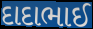
દાદાભાઈ